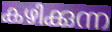
കഴിക്കുന്ന